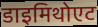
डाइमिथोएट